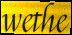
wethe